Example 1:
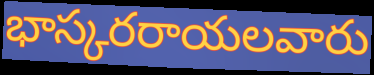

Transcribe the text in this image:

భాస్కరరాయలవారు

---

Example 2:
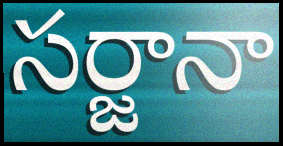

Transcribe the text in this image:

సర్జానా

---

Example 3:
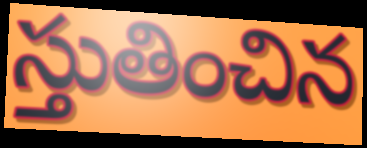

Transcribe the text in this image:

స్తుతించిన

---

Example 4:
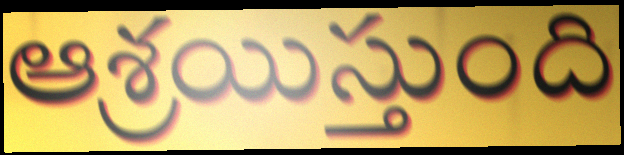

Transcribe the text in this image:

ఆశ్రయిస్తుంది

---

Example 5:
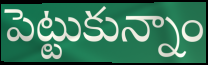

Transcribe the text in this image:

పెట్టుకున్నాం